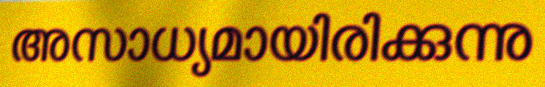
അസാധ്യമായിരിക്കുന്നു